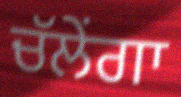
ਚੱਲੇਂਗਾ